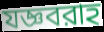
যজ্ঞবরাহ